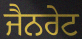
ਜੈਨਰੇਟ